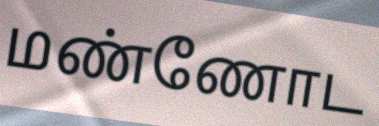
மண்ணோட